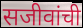
सजीवांची